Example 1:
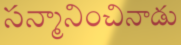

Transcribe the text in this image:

సన్మానించినాడు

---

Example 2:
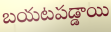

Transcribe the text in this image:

బయటపడ్డాయి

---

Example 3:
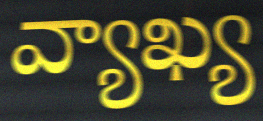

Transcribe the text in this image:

వ్యాఖ్య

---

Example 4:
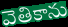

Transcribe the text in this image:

వెతికాను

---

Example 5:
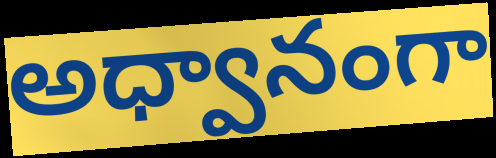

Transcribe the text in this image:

అధ్వానంగా